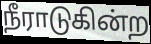
நீராடுகின்ற